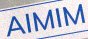
AIMIM